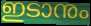
ഇടാനും